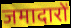
जमादारों